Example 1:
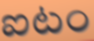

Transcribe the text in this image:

ఐటం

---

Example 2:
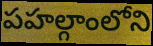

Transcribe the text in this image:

పహల్గాంలోని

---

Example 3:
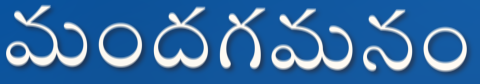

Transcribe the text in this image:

మందగమనం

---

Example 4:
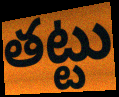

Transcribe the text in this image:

తట్టు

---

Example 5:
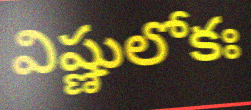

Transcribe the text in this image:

విష్ణులోకః